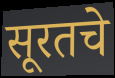
सूरतचे